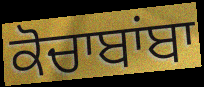
ਕੋਚਾਬਾਂਬਾ